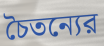
চৈতন্যের